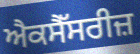
ਐਕਸੈੱਸਰੀਜ਼